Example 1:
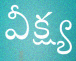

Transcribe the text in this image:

వీక్ష్య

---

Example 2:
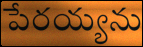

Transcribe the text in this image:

పేరయ్యను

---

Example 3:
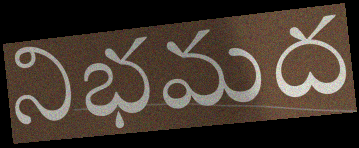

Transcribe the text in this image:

నిభమద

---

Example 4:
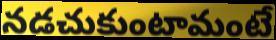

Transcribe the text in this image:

నడచుకుంటామంటే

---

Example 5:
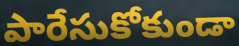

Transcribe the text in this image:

పారేసుకోకుండా